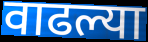
वाढल्या